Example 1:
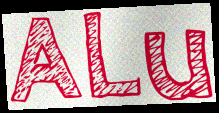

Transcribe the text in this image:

ALu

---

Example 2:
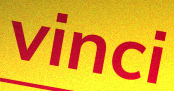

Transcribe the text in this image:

vinci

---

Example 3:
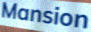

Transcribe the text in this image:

Mansion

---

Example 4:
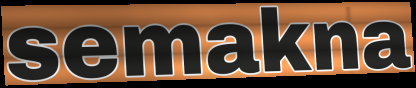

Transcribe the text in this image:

semakna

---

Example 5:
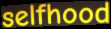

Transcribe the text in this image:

selfhood